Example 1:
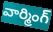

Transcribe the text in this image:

వార్మింగ్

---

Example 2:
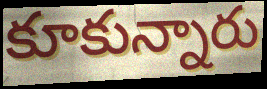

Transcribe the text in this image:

కూకున్నారు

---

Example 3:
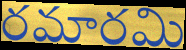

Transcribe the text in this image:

రమారమి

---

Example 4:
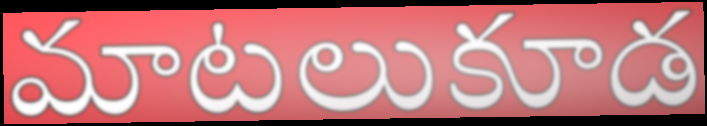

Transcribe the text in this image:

మాటలుకూడ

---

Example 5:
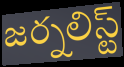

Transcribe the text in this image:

జర్నలిస్ట్